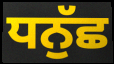
ਧਨੁੱਛ